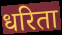
धरिता